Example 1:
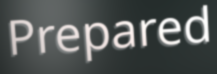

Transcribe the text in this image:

Prepared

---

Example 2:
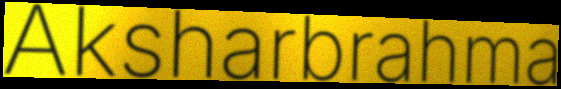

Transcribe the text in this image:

Aksharbrahma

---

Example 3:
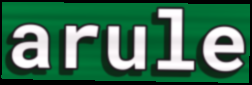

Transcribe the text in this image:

arule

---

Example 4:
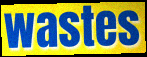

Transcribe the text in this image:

wastes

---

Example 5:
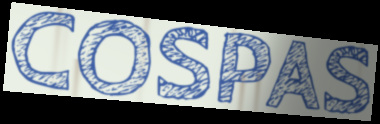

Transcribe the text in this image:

COSPAS